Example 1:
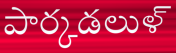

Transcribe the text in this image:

పార్కడలుళ్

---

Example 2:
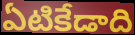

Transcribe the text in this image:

ఏటికేడాది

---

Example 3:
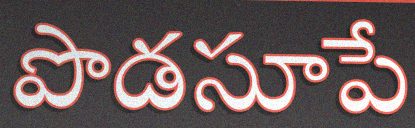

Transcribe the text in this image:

పొడసూపే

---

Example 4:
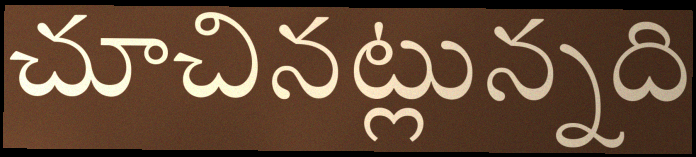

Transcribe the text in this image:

చూచినట్లున్నది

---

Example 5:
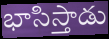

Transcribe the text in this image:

భాసిస్తాడు